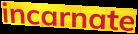
incarnate